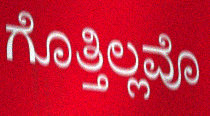
ಗೊತ್ತಿಲ್ಲವೊ